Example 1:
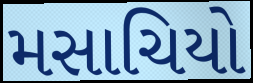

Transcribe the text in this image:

મસાચિયો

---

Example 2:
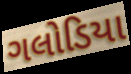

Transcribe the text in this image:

ગલોડિયા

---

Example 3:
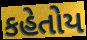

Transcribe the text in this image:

કહેતોય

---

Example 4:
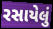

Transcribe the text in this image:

રસાયેલું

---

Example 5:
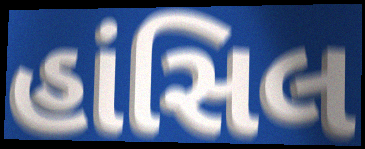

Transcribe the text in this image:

હાંસિલ